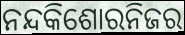
ନନ୍ଦକିଶୋରନିଜର